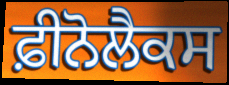
ਫ਼ੀਨੋਲੈਕਸ